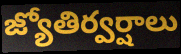
జ్యోతిర్వర్షాలు